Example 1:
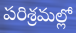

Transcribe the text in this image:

పరిశ్రమల్లో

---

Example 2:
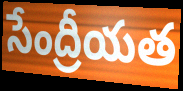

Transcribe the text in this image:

సేంద్రీయత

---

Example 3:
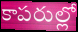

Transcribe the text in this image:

కాపరుల్లో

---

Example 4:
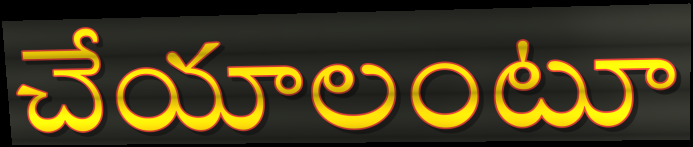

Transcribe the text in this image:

చేయాలంటూ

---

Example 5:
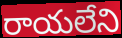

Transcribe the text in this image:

రాయలేని